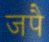
जपै